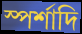
স্পর্শাদি